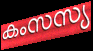
കംസസ്യ